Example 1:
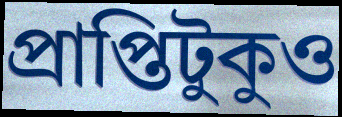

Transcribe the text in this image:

প্রাপ্তিটুকুও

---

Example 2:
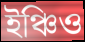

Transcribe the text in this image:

ইঞ্চিও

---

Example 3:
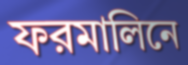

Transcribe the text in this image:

ফরমালিনে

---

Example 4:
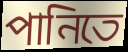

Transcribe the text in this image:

পানিতে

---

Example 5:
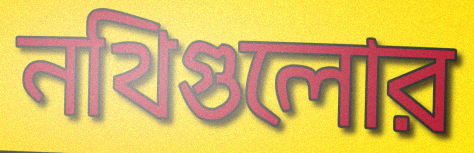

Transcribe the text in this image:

নথিগুলোর